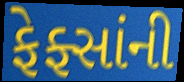
ફેફ્સાંની